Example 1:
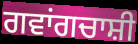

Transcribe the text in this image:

ਗਵਾਂਗਚਾਸ਼ੀ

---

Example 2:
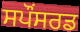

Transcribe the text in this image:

ਸਪੌਂਸਰਡ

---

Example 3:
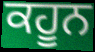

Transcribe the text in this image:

ਕਹੂਨ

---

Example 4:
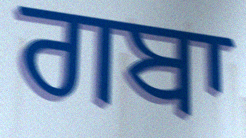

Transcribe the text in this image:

ਗਬਾ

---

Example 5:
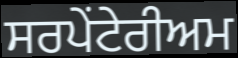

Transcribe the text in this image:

ਸਰਪੇਂਟੇਰੀਅਮ